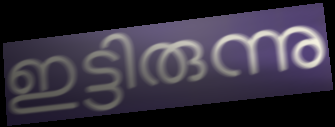
ഇട്ടിരുന്നു